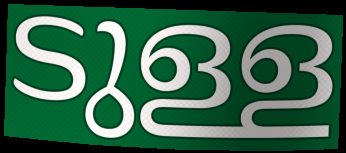
ടുള്ള